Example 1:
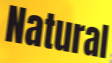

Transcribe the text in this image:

Natural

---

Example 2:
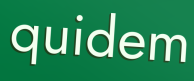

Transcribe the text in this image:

quidem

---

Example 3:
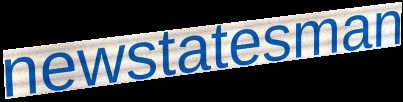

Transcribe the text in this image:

newstatesman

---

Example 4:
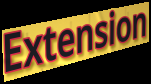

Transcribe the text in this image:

Extension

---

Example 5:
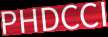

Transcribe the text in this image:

PHDCCI